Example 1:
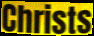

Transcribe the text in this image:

Christs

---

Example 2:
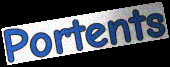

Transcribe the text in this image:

Portents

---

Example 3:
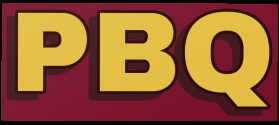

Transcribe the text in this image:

PBQ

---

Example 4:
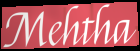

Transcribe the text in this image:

Mehtha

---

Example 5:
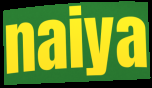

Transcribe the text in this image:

naiya